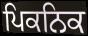
ਪਿਕਨਿਕ